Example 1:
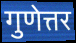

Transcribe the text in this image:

गुणेत्तर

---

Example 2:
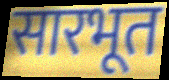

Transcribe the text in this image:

सारभूत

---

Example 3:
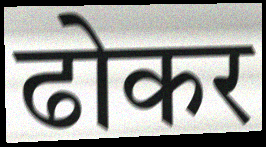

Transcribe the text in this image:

ढोकर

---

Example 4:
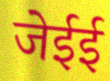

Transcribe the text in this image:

जेईई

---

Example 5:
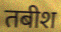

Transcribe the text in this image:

तबीश